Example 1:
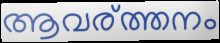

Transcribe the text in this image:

ആവര്ത്തനം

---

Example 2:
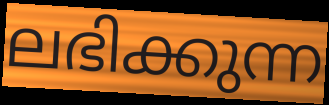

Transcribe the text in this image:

ലഭിക്കുന്ന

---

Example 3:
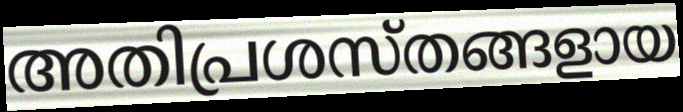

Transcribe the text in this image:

അതിപ്രശസ്തങ്ങളായ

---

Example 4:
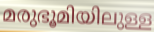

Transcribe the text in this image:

മരുഭൂമിയിലുള്ള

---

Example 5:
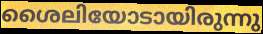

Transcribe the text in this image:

ശൈലിയോടായിരുന്നു